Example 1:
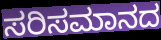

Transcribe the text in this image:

ಸರಿಸಮಾನದ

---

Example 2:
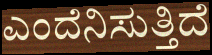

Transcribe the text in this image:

ಎಂದೆನಿಸುತ್ತಿದೆ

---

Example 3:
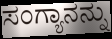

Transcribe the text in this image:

ಸಂಗ್ಯಾನನ್ನು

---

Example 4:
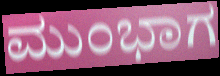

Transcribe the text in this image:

ಮುಂಭಾಗ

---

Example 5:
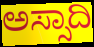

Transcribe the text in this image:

ಅಸ್ಸಾದಿ